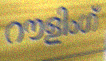
റൗളിംഗ്